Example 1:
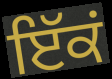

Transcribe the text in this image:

ਇੱਕਂ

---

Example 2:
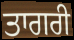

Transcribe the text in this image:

ਤਾਗਰੀ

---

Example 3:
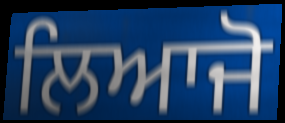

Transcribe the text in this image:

ਲਿਆਜੋ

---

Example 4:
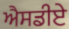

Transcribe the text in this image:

ਐਸਡੀਏ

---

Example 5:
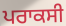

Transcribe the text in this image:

ਪਰਾਕਸੀ